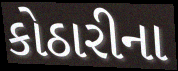
કોઠારીના